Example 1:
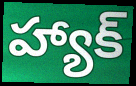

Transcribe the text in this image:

హ్యాక్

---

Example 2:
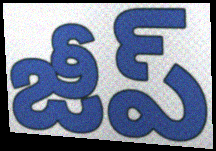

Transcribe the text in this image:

జీప్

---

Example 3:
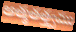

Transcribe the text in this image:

ఆత్మతత్త్వము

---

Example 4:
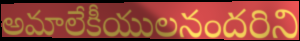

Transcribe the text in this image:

అమాలేకీయులనందరిని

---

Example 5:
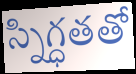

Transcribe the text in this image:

స్నిగ్ధతతో